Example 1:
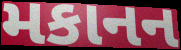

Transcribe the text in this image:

મકાનન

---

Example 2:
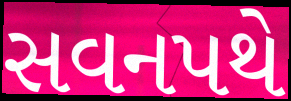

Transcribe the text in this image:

સવનપથે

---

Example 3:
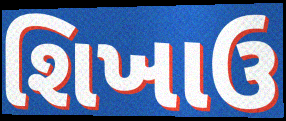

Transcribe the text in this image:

શિખાઉ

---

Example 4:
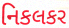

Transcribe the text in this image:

નિકલકર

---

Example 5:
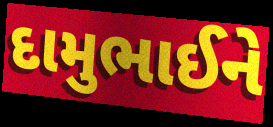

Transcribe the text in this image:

દામુભાઈને